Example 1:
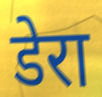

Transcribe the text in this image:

डेरा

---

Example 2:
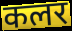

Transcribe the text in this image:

कलर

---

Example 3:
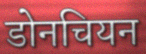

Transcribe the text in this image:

डोनचियन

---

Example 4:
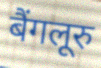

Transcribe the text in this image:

बैंगलूरु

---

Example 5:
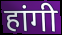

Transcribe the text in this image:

हांगी